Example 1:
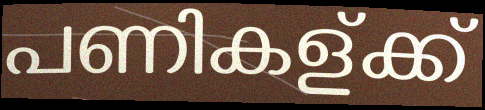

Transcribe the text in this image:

പണികള്ക്ക്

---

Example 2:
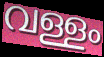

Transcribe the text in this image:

വള്ളം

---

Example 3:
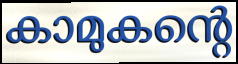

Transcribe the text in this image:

കാമുകന്റെ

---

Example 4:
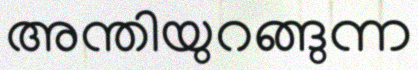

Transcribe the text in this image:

അന്തിയുറങ്ങുന്ന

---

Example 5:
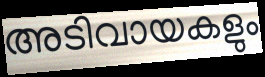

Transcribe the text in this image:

അടിവായകളും